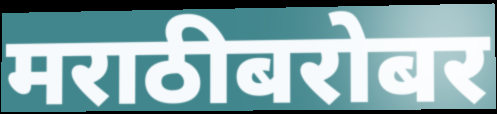
मराठीबरोबर